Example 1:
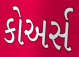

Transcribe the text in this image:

કોઅર્સ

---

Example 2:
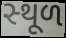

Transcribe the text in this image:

સ્‍થૂળ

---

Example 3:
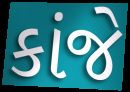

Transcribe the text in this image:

કાંજે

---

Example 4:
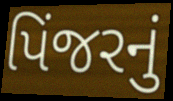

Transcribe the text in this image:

પિંજરનું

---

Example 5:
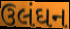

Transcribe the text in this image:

ઉલંઘન